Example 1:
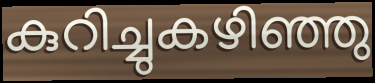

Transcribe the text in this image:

കുറിച്ചുകഴിഞ്ഞു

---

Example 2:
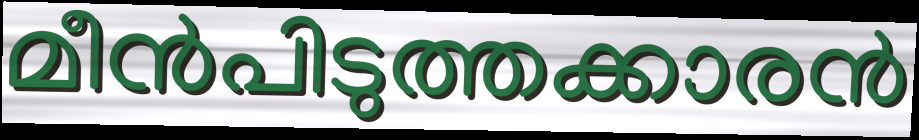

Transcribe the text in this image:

മീൻപിടുത്തക്കാരൻ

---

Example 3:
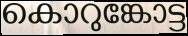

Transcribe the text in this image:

കൊറുങ്കോട്ട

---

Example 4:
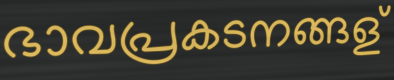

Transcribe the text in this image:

ഭാവപ്രകടനങ്ങള്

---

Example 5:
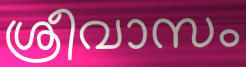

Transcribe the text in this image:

ശ്രീവാസം